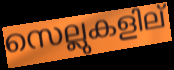
സെല്ലുകളില്